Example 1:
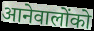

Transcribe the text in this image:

आनेवालोंको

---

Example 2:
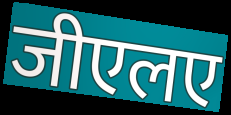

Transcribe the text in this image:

जीएलए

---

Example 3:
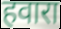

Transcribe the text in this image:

हवारा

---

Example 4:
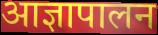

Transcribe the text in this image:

आज्ञापालन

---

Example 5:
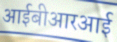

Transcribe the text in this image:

आईबीआरआई